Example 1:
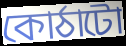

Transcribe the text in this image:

কোঠাটো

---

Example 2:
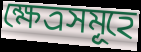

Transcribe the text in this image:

ক্ষেত্ৰসমূহে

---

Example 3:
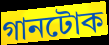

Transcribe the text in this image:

গানটোক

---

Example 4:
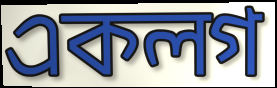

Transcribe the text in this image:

একলগ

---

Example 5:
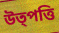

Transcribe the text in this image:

উত্পত্তি